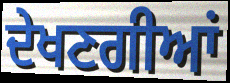
ਦੇਖਣਗੀਆਂ